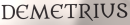
DEMETRIUS